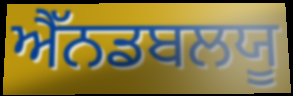
ਐੱਨਡਬਲਯੂ